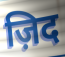
ज़िद